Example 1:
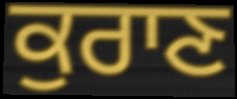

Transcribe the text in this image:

ਕੁਰਾਣ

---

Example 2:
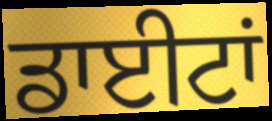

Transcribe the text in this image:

ਡਾਈਟਾਂ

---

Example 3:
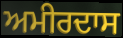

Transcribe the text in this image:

ਅਮੀਰਦਾਸ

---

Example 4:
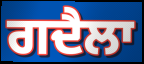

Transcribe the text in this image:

ਗਦੈਲਾ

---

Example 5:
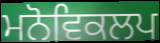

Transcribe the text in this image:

ਮਨੋਵਿਕਲਪ